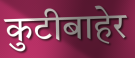
कुटीबाहेर